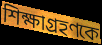
শিক্ষাগ্রহণকে